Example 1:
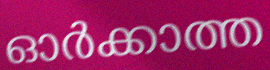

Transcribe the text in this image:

ഓർക്കാത്ത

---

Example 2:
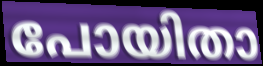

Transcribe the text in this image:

പോയിതാ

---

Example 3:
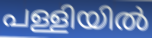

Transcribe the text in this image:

പള്ളിയിൽ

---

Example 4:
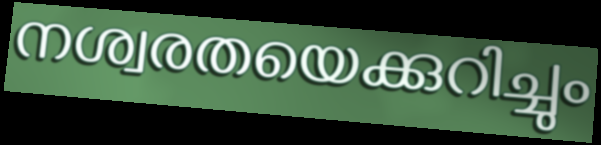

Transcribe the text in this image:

നശ്വരതയെക്കുറിച്ചും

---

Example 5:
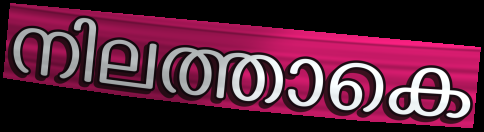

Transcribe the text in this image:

നിലത്താകെ